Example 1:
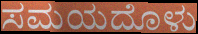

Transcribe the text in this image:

ಸಮಯದೊಳು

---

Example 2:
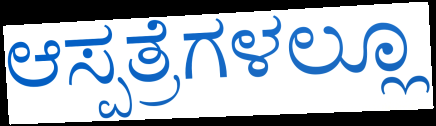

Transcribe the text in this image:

ಆಸ್ಪತ್ರೆಗಳಲ್ಲೂ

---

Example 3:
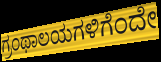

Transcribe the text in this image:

ಗ್ರಂಥಾಲಯಗಳಿಗೆಂದೇ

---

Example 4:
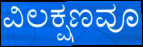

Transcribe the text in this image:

ವಿಲಕ್ಷಣವೂ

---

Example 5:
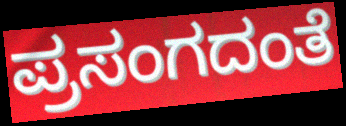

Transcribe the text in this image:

ಪ್ರಸಂಗದಂತೆ